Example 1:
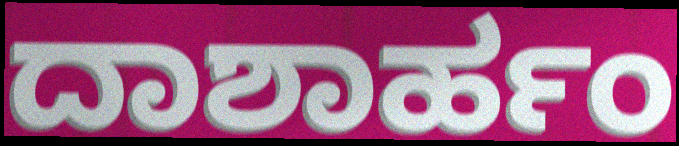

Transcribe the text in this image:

ದಾಶಾರ್ಹಂ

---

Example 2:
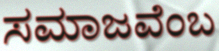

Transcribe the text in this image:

ಸಮಾಜವೆಂಬ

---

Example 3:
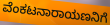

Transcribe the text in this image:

ವೆಂಕಟನಾರಾಯಣನಿಗೆ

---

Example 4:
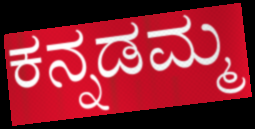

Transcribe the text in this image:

ಕನ್ನಡಮ್ಮ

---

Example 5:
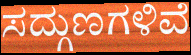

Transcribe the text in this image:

ಸದ್ಗುಣಗಳಿವೆ